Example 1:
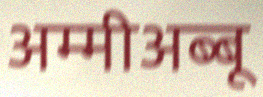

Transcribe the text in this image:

अम्मीअब्बू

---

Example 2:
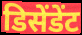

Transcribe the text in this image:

डिसेंडेंट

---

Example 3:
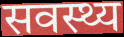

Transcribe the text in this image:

सवस्थ्य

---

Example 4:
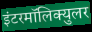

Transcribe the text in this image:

इंटरमॉलिक्युलर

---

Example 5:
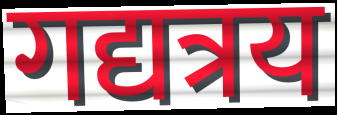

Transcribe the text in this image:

गद्यत्रय